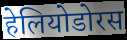
हेलियोडोरस